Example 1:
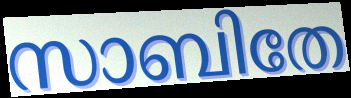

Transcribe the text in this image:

സാബിതേ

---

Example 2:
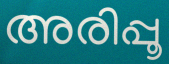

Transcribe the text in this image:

അരിപ്പൂ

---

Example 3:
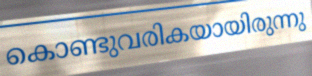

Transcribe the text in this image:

കൊണ്ടുവരികയായിരുന്നു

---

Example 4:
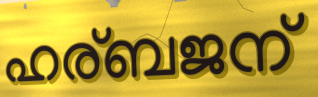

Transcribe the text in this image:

ഹര്ബജന്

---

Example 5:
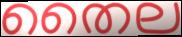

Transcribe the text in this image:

തൈല